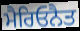
ਮੈਰਿਓਨੈਤ